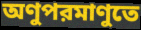
অণুপরমাণুতে